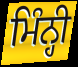
ਮਿੰਨ੍ਹੀ